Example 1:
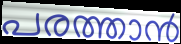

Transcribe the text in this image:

പരത്താൻ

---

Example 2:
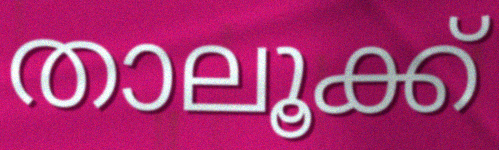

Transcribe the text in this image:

താലൂക്ക്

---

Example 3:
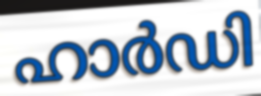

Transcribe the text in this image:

ഹാർഡി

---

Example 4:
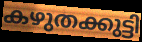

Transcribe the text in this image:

കഴുതക്കുട്ടി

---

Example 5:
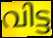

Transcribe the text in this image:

വിട്ട